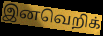
இனவெறிக்